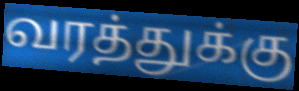
வரத்துக்கு